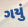
ગયું